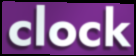
clock